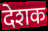
देशक